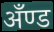
अँण्ड